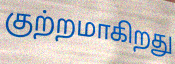
குற்றமாகிறது